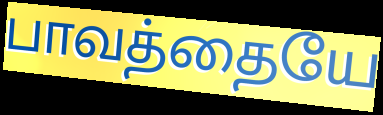
பாவத்தையே